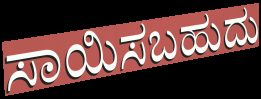
ಸಾಯಿಸಬಹುದು